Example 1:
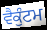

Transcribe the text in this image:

ਵੈਕੁੰਟਮ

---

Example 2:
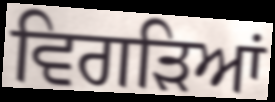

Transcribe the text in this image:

ਵਿਗੜਿਆਂ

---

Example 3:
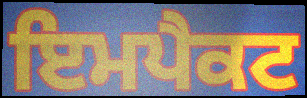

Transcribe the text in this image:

ਇਮਪੈਕਟ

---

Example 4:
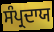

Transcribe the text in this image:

ਸੰਪ੍ਰਦਾਯ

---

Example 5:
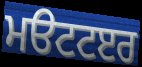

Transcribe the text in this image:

ਮੳਟਟੲਰ